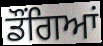
ਡੌਂਗਿਆਂ